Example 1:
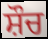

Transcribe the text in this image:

ਸ਼ੌਚ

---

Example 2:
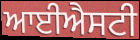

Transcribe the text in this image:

ਆਈਐਸਟੀ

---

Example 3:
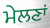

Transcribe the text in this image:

ਮੇਲਣਾਂ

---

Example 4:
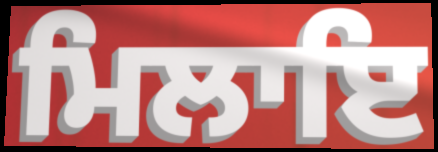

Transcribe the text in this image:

ਮਿਲਾਇ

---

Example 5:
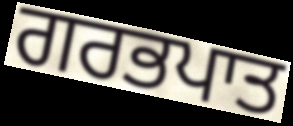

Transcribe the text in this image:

ਗਰਭਪਾਤ